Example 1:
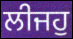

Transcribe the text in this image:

ਲੀਜਹੁ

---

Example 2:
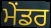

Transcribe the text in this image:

ਮੇਂਡਰ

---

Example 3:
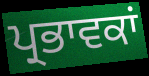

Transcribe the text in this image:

ਪ੍ਰਭਾਵਕਾਂ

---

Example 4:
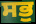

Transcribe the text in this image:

ਸਭੁ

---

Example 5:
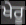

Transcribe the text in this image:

ਖੇਰੂ